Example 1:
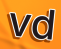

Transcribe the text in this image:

vd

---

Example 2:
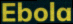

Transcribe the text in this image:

Ebola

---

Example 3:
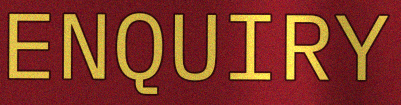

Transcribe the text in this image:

ENQUIRY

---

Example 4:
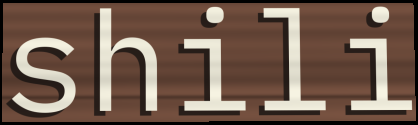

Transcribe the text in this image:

shili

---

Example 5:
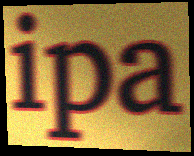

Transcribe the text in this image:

ipa